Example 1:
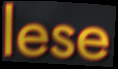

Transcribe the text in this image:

lese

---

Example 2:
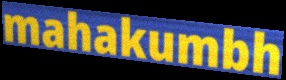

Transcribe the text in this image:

mahakumbh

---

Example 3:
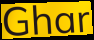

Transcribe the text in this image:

Ghar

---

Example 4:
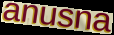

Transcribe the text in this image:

anusna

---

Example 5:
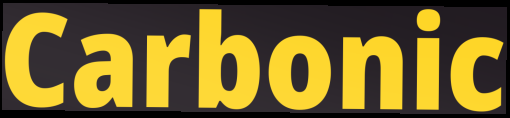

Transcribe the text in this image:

Carbonic